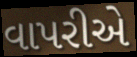
વાપરીએ